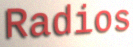
Radios